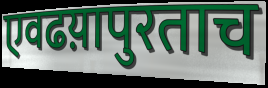
एवढय़ापुरताच